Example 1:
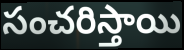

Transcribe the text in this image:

సంచరిస్తాయి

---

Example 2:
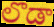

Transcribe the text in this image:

లొడా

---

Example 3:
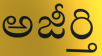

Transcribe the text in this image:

అజీర్తి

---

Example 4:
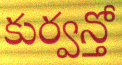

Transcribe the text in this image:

కుర్వన్తో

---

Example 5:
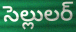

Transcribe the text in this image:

సెల్లులర్